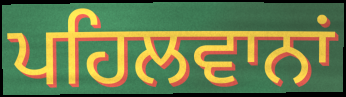
ਪਹਿਲਵਾਨਾਂ